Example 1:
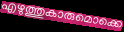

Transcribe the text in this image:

എഴുത്തുകാരുമൊക്കെ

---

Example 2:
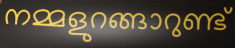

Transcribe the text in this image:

നമ്മളുറങ്ങാറുണ്ട്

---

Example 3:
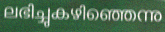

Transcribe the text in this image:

ലഭിച്ചുകഴിഞ്ഞെന്നു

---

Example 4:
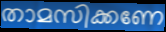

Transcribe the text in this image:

താമസിക്കണേ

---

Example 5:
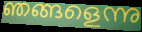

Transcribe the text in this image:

ഞങ്ങളെന്നു